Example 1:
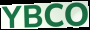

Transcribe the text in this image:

YBCO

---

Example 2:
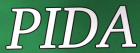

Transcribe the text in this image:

PIDA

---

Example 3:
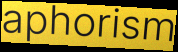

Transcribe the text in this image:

aphorism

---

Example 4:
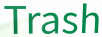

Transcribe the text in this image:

Trash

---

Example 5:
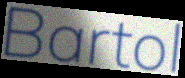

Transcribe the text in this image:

Bartol